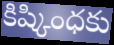
కిష్కింధకు